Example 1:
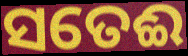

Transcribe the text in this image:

ସତେଈ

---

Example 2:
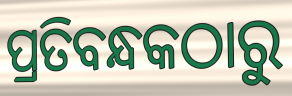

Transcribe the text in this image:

ପ୍ରତିବନ୍ଧକଠାରୁ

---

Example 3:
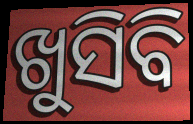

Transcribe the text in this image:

ଖୁସିବି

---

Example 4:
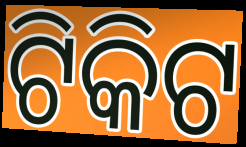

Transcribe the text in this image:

ଟିକିଟ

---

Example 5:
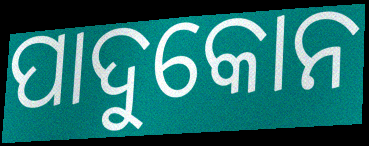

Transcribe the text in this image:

ପାଦୁକୋନ